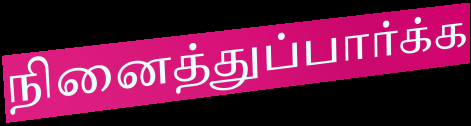
நினைத்துப்பார்க்க